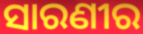
ସାରଣୀର